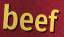
beef